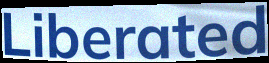
Liberated